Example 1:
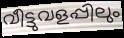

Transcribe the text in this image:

വീട്ടുവളപ്പിലും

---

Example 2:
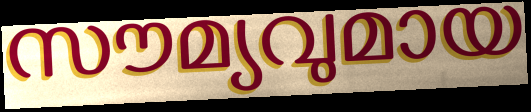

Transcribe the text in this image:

സൗമ്യവുമായ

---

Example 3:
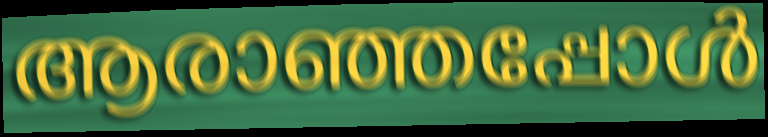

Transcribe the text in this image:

ആരാഞ്ഞപ്പോൾ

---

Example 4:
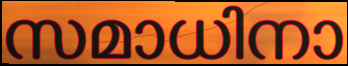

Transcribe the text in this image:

സമാധിനാ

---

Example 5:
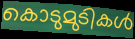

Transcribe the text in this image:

കൊടുമുടികൾ